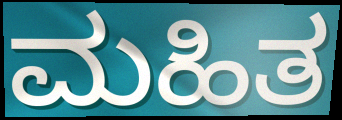
ಮಹಿತ